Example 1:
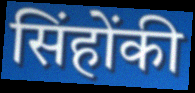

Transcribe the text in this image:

सिंहोंकी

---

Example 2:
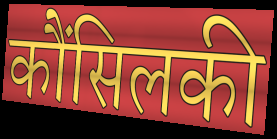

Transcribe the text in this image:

कौंसिलकी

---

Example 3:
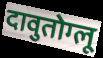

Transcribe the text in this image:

दावुतोग्लू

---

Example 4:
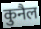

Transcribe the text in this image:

कुनैल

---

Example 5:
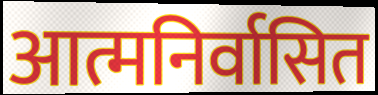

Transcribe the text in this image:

आत्मनिर्वासित